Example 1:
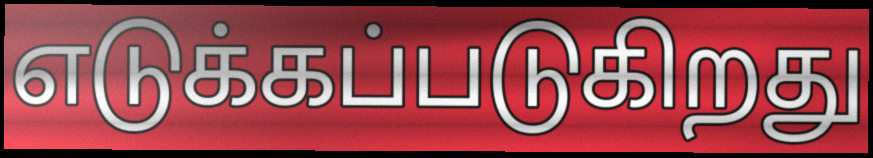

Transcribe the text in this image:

எடுக்கப்படுகிறது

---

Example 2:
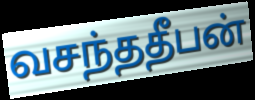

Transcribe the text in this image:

வசந்ததீபன்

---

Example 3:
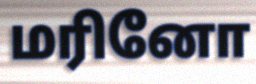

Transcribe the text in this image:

மரினோ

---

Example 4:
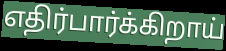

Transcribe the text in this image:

எதிர்பார்க்கிறாய்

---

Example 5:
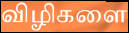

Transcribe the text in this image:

விழிகளை